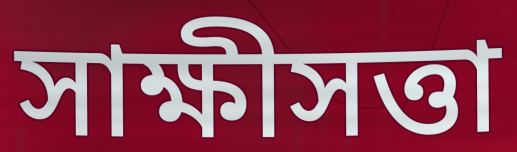
সাক্ষীসত্তা